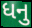
ધનુ